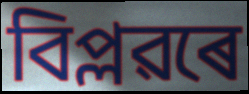
বিপ্লৱৰে